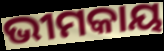
ଭୀମକାୟ